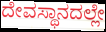
ದೇವಸ್ಥಾನದಲ್ಲೇ